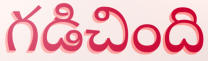
గడిచింది